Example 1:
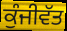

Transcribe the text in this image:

ਕੁੰਜੀਵੱਤ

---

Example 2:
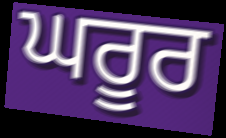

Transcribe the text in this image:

ਘਰੂਰ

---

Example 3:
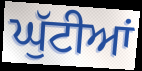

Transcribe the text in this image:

ਘੁੱਟੀਆਂ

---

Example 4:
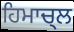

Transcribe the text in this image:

ਹਿਮਾਚ੍ਲ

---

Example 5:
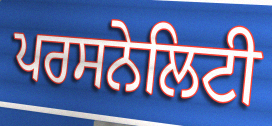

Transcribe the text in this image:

ਪਰਸਨੇਲਿਟੀ